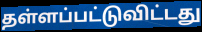
தள்ளப்பட்டுவிட்டது